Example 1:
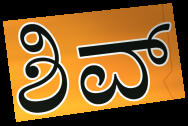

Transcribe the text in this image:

ಶಿವ್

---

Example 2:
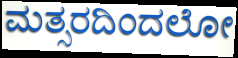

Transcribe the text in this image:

ಮತ್ಸರದಿಂದಲೋ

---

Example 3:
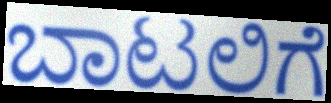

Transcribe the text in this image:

ಬಾಟಲಿಗೆ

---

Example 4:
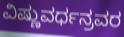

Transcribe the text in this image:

ವಿಷ್ಣುವರ್ಧನ್ರವರ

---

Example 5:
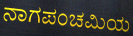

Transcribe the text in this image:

ನಾಗಪಂಚಮಿಯ